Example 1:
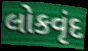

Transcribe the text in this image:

લોકવૃંદ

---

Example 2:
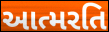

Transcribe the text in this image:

આત્મરતિ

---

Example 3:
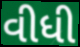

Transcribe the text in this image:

વીધી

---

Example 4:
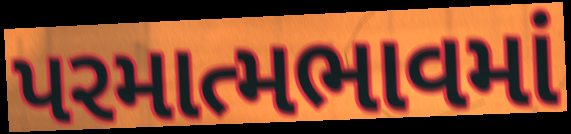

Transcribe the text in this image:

પરમાત્મભાવમાં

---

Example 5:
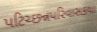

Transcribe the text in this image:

પટિચ્છન્નપરિવાસકથા